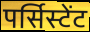
पर्सिस्टेंट